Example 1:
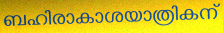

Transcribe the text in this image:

ബഹിരാകാശയാത്രികന്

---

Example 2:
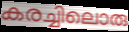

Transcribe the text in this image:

കരച്ചിലൊരു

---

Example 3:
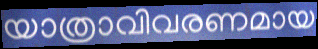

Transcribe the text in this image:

യാത്രാവിവരണമായ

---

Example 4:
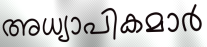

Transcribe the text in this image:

അധ്യാപികമാർ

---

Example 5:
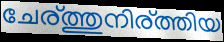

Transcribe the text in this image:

ചേര്ത്തുനിര്ത്തിയ